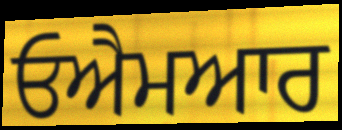
ਓਐਮਆਰ